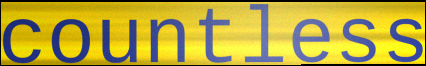
countless